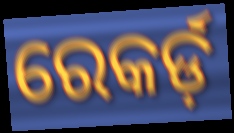
ରେକର୍ଡ଼